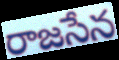
రాజసేన